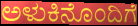
ಅಳುಕಿನೊಂದಿಗೆ